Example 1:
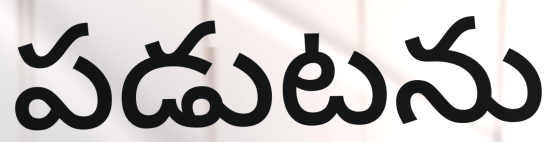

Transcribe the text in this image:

పడుటను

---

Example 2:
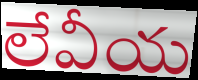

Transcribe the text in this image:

లేవీయ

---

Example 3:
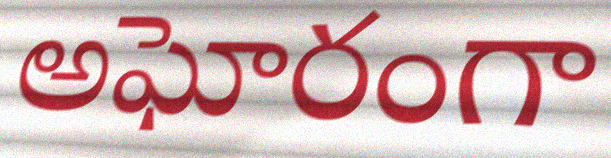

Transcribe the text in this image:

అఘోరంగా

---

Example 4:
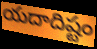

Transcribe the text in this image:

యదాదిష్టం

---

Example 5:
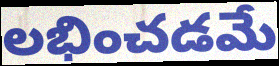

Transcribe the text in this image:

లభించడమే